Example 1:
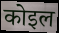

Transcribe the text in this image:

कोइल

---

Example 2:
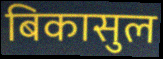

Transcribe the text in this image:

बिकासुल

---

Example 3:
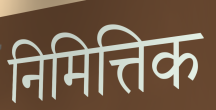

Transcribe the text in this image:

निमित्तिक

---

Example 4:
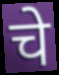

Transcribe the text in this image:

चे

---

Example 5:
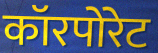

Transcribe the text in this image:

कॉरपोरेट